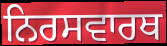
ਨਿਰਸਵਾਰਥ